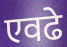
एवढे